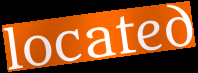
located